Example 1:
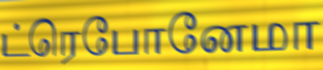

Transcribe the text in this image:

ட்ரெபோனேமா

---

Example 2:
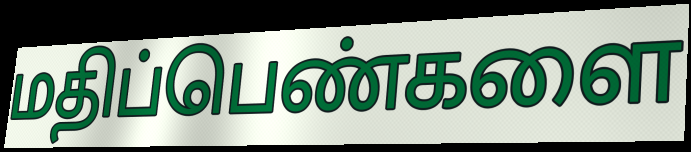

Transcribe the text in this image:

மதிப்பெண்களை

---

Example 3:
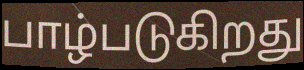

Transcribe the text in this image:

பாழ்படுகிறது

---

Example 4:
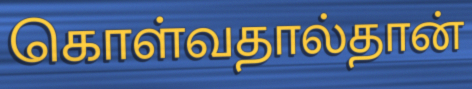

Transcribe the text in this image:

கொள்வதால்தான்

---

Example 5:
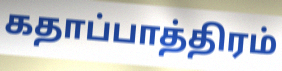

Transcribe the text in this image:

கதாப்பாத்திரம்